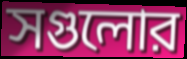
সগুলোর